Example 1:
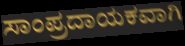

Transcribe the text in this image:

ಸಾಂಪ್ರದಾಯಕವಾಗಿ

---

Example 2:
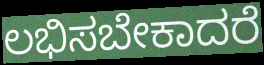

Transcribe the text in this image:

ಲಭಿಸಬೇಕಾದರೆ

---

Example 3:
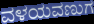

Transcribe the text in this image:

ವಳಯವಣುಗ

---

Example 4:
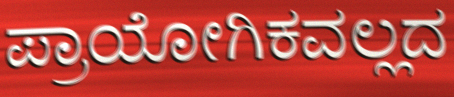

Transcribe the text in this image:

ಪ್ರಾಯೋಗಿಕವಲ್ಲದ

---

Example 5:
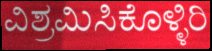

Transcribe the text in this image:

ವಿಶ್ರಮಿಸಿಕೊಳ್ಳಿರಿ